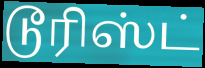
டூரிஸ்ட்